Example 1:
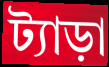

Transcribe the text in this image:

ট্যাড়া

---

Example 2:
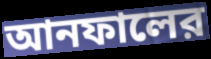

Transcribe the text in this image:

আনফালের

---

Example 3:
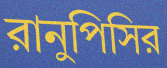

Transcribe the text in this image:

রানুপিসির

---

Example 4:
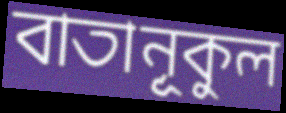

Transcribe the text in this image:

বাতানূকুল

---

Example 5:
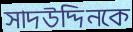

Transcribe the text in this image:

সাদউদ্দিনকে